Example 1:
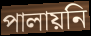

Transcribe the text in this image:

পালায়নি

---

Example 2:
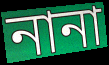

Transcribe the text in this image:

নানা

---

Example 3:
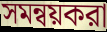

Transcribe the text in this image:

সমন্বয়করা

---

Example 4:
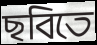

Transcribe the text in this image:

ছবিতে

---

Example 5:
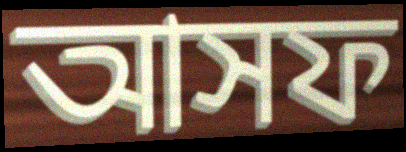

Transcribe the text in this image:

আসফ